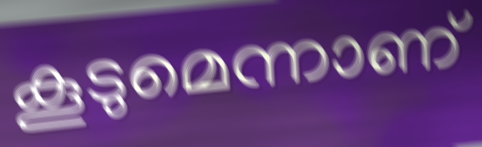
കൂടുമെന്നാണ്